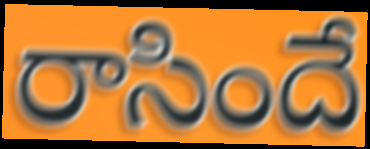
రాసిందే